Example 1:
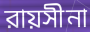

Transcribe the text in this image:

রায়সীনা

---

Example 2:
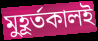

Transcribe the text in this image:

মুহূর্তকালই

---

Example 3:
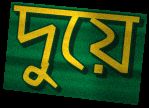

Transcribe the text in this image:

দুয়ে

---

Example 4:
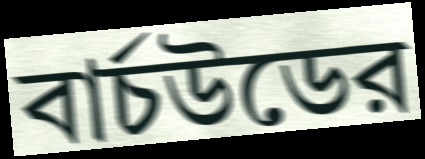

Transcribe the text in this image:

বার্চউডের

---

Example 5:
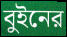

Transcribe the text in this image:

বুইনের